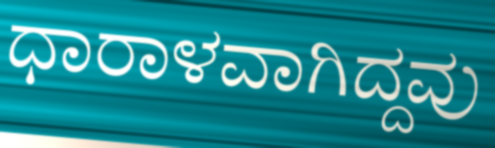
ಧಾರಾಳವಾಗಿದ್ದವು